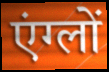
एंग्लों